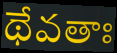
థేవతాః